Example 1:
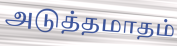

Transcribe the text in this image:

அடுத்தமாதம்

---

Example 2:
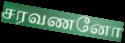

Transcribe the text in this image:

சரவணனோ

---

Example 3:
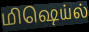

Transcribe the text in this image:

மிஷெய்ல்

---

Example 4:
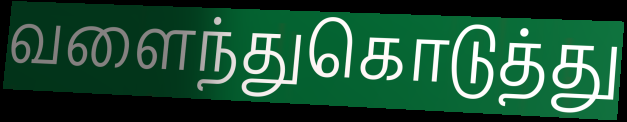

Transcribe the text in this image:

வளைந்துகொடுத்து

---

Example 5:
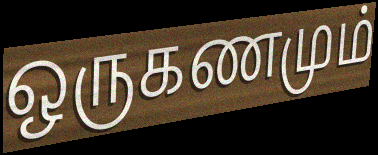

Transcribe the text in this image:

ஒருகணமும்